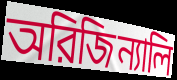
অরিজিন্যালি